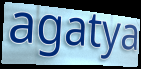
agatya